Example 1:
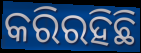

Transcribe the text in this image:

କରିରହିଛି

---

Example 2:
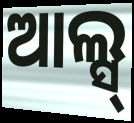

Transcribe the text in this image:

ଆଲ୍ସ୍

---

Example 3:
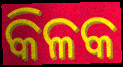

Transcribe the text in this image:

କିଳକ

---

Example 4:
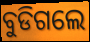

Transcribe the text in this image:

ବୁଡିଗଲେ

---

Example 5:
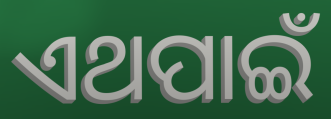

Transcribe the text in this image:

ଏଥପାଇଁ